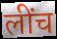
लींच